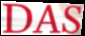
DAS